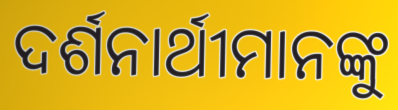
ଦର୍ଶନାର୍ଥୀମାନଙ୍କୁ